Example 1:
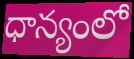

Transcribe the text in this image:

ధాన్యంలో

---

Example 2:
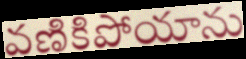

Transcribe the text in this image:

వణికిపోయాను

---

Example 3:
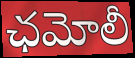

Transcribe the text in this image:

ఛమోలీ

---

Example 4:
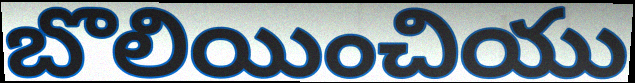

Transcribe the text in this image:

బొలియించియు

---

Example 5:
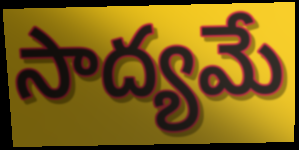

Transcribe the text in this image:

సాద్యమే